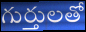
గుర్తులతో